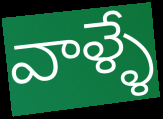
వాళ్ళే